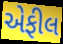
એફીલ